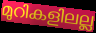
മുറികളിലല്ല